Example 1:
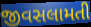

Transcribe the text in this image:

જીવસલામતી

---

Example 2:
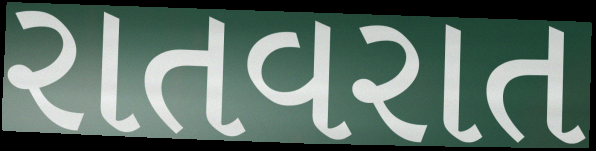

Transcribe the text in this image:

રાતવરાત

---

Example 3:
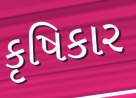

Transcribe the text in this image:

કૃષિકાર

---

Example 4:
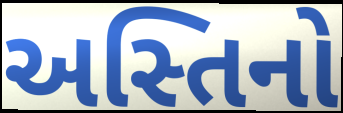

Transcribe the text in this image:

અસ્તિનો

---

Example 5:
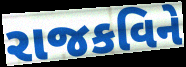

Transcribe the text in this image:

રાજકવિને